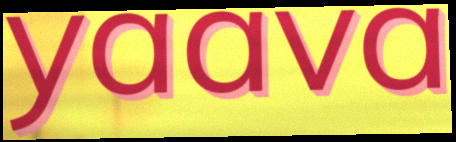
yaava